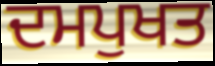
ਦਮਪੁਖਤ